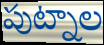
పుట్నాల